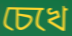
চেখে